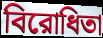
বিরোধিতা